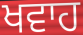
ਖਵਾਹ